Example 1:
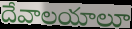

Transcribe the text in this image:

దేవాలయాలూ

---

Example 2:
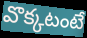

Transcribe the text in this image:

వొక్కటంటే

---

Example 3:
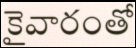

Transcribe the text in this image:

కైవారంతో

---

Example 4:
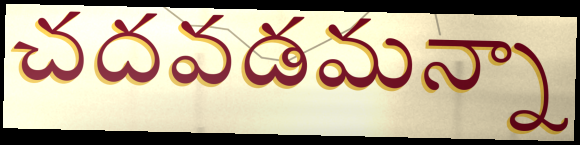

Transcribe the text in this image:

చదవడమన్నా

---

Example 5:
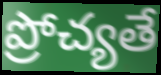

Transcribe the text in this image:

ప్రోచ్యతే